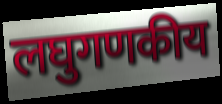
लघुगणकीय